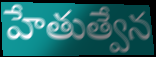
హేతుత్వేన